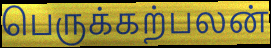
பெருக்கற்பலன்